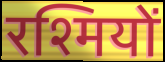
रश्मियों